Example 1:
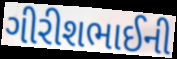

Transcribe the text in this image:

ગીરીશભાઈની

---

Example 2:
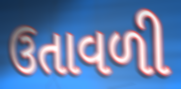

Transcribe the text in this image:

ઉતાવળી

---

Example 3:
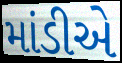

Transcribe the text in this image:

માંડીએ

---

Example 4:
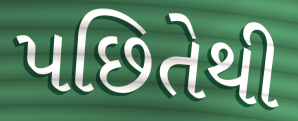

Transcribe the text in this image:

પછિતેથી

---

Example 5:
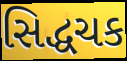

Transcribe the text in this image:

સિદ્ધચક